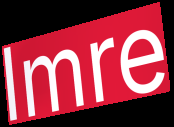
Imre